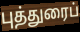
புத்துரைப்